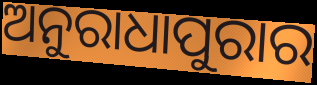
ଅନୁରାଧାପୁରାର